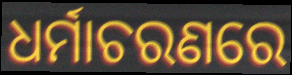
ଧର୍ମାଚରଣରେ